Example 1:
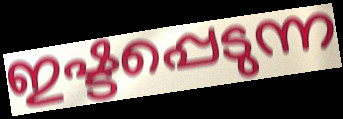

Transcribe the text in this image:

ഇഷ്ടപ്പെടുന്ന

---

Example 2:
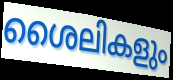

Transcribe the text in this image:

ശൈലികളും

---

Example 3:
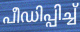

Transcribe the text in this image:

പീഡിപ്പിച്ച്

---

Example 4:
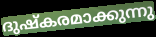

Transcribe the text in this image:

ദുഷ്കരമാക്കുന്നു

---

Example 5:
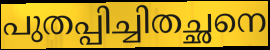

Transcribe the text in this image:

പുതപ്പിച്ചിതച്ഛനെ